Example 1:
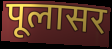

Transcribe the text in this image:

पूलासर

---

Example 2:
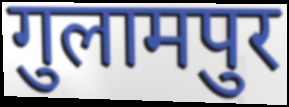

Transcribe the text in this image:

गुलामपुर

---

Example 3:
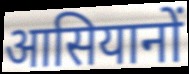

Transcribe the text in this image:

आसियानों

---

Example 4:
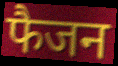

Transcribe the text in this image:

फैजन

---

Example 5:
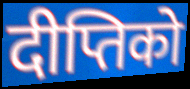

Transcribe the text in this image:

दीप्तिको